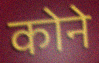
कोने